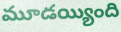
మూడయ్యింది